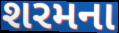
શરમના